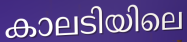
കാലടിയിലെ